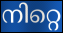
നിറ്റെ